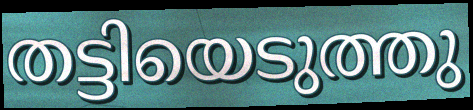
തട്ടിയെടുത്തു